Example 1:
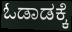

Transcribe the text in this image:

ಓಡಾಡಕ್ಕೆ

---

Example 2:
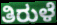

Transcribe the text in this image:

ತಿರುಳೆ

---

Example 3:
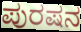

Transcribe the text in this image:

ಪುರಷನ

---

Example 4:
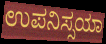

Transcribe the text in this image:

ಉಪನಿಸ್ಸಯಾ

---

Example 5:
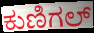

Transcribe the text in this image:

ಕುಣಿಗಲ್